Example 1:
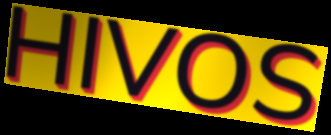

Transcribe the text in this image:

HIVOS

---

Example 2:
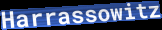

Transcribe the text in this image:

Harrassowitz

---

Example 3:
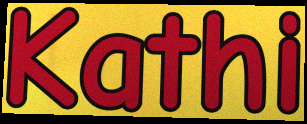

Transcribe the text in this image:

Kathi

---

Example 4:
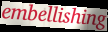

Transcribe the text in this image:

embellishing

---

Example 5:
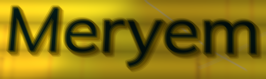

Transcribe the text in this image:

Meryem